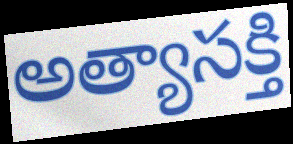
అత్యాసక్తి